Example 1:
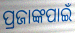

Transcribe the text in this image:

ପ୍ରଜାଙ୍କପାଇଁ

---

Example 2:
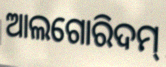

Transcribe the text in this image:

ଆଲଗୋରିଦମ୍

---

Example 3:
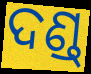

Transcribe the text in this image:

ଦଣ୍ଡ୍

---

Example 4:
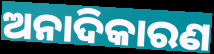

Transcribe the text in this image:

ଅନାଦିକାରଣ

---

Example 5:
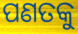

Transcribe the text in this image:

ପଣତକୁ